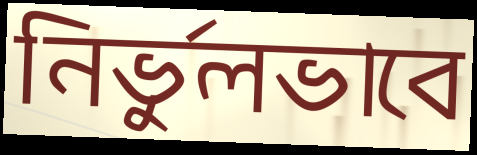
নির্ভুলভাবে